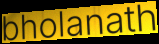
bholanath